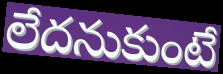
లేదనుకుంటే